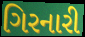
ગિરનારી